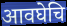
आवघेचि